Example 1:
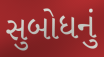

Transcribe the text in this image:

સુબોધનું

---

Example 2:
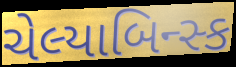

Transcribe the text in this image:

ચેલ્યાબિન્સ્ક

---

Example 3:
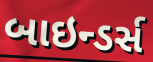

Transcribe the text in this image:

બાઇન્ડર્સ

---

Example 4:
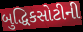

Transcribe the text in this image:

બુદ્ધિકસોટીની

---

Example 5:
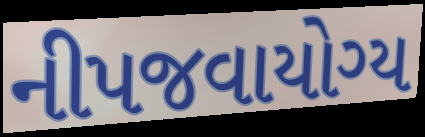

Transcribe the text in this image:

નીપજવાયોગ્ય